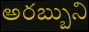
అరబ్బుని